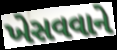
ખેસવવાને